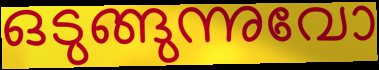
ഒടുങ്ങുന്നുവോ